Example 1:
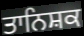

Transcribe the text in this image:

ਤਾਨਿਸ਼ਕ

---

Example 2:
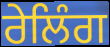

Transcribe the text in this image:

ਰੇਲਿੰਗ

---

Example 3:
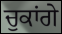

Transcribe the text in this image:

ਚੁਕਾਂਗੇ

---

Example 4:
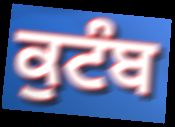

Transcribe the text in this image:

ਕੁਟੰਬ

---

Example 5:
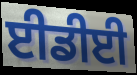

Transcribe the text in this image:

ਈਡੀਈ